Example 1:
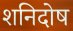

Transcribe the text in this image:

शनिदोष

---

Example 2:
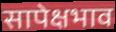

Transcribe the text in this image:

सापेक्षभाव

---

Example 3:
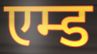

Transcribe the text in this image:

एम्ड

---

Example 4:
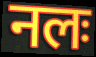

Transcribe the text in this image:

नलः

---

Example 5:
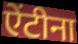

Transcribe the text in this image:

ऐंटीना